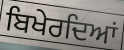
ਬਿਖੇਰਦਿਆਂ